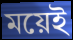
ময়েই